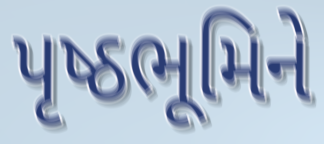
પૃષ્ઠભૂમિને